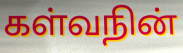
கள்வநின்